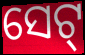
ସେଟ୍